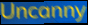
Uncanny